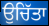
ਉਚਿੱਤਾ